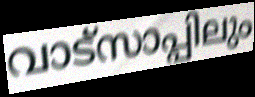
വാട്സാപ്പിലും